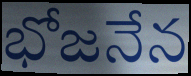
భోజనేన